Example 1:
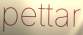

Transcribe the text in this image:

pettar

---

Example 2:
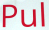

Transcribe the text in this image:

Pul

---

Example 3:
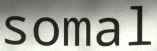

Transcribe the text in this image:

somal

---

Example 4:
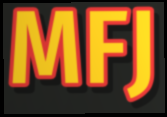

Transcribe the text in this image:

MFJ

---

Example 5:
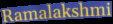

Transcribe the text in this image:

Ramalakshmi